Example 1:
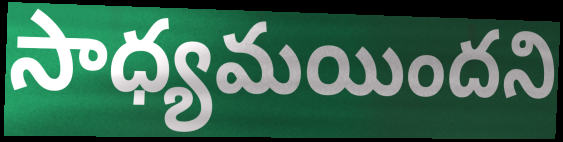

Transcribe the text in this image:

సాధ్యమయిందని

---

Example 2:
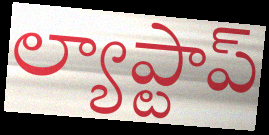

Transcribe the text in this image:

ల్యాప్టాప్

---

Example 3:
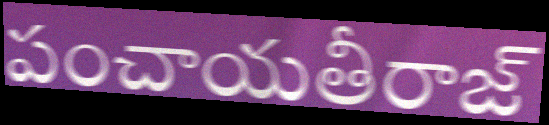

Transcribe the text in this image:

పంచాయతీరాజ్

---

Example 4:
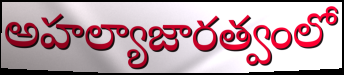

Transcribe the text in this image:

అహల్యాజారత్వంలో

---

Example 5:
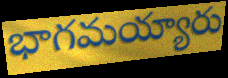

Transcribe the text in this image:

భాగమయ్యారు